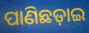
ପାଣିଛଡ଼ାଇ